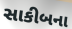
સાકીબના